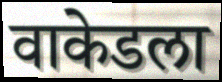
वाकेडला